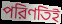
পরিণতিই